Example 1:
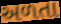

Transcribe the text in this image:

અળતા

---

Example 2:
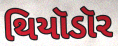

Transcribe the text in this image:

થિયૉડૉર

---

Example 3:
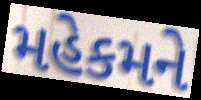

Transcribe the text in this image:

મહેકમને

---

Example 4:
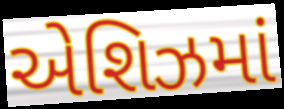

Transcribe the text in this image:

એશિઝમાં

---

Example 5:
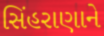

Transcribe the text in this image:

સિંહરાણાને